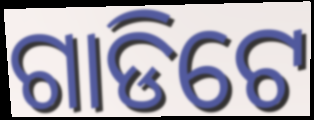
ଗାଡିଟେ